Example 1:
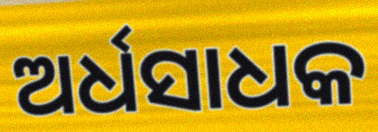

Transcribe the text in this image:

ଅର୍ଧସାଧକ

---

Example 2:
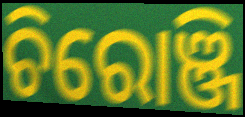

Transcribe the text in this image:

ଚିରୋଞ୍ଜି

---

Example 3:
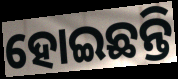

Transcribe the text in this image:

ହୋଇଛନ୍ତି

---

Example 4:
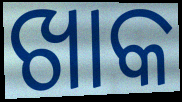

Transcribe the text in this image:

ଖାକ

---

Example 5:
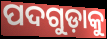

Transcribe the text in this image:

ପଦଗୁଡ଼ାକୁ